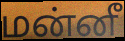
மன்னீ